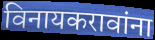
विनायकरावांना